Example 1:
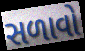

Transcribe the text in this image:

સળાવો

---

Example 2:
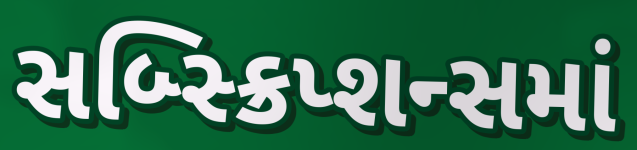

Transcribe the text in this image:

સબ્સ્ક્રિપ્શન્સમાં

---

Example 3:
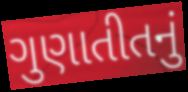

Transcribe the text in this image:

ગુણાતીતનું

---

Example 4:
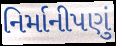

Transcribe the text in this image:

નિર્માનીપણું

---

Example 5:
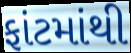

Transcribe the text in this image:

ફાંટમાંથી